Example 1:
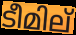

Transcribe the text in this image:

ടീമില്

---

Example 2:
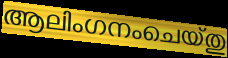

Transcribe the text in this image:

ആലിംഗനംചെയ്തു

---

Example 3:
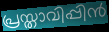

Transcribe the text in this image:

പ്രസ്താവിപ്പിൻ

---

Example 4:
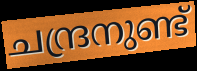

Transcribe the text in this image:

ചന്ദ്രനുണ്ട്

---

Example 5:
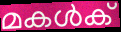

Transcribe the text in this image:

മകൾക്